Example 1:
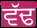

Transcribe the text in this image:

ਵੱਢ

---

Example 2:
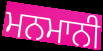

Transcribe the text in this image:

ਮਨਮਾਨੀ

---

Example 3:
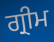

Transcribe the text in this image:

ਗ੍ਰੀਮ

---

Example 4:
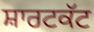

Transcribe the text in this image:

ਸ਼ਾਰਟਕੱਟ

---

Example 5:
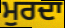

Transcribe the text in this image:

ਮੁਰਦਾ